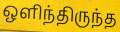
ஒளிந்திருந்த